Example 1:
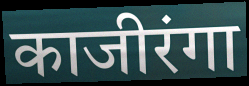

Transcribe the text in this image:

काजीरंगा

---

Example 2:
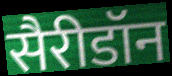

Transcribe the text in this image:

सैरीडॉन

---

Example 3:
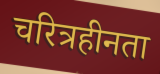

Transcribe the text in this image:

चरित्रहीनता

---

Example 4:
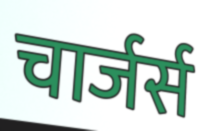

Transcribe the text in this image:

चार्जर्स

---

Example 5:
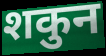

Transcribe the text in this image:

शकुन